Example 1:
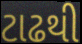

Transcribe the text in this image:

ટાઢથી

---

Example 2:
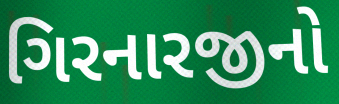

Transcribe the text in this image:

ગિરનારજીનો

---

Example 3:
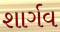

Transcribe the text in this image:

શાર્ગવ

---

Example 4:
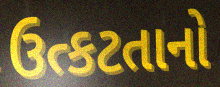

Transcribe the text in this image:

ઉત્કટતાનો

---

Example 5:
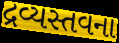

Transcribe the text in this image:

દ્રવ્યસ્તવના